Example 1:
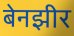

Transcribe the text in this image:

बेनझीर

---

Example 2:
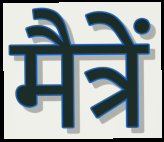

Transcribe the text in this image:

मैत्रें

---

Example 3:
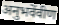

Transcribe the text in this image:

अनुभवेंवीण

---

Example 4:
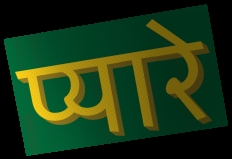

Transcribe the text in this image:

प्यारे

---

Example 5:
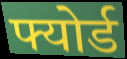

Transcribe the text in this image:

फ्योर्ड